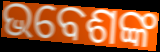
ଭବେଶଙ୍କ